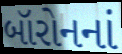
બૉરોનનાં